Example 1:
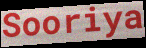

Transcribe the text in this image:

Sooriya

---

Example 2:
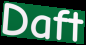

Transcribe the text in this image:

Daft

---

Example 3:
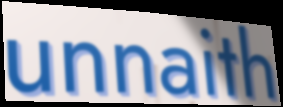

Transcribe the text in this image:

unnaith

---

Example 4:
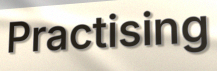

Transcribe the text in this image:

Practising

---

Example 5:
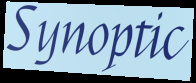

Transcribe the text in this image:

Synoptic